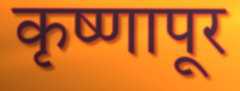
कृष्णापूर